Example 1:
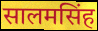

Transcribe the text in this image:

सालमसिंह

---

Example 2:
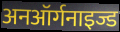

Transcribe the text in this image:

अनऑर्गनाइज्ड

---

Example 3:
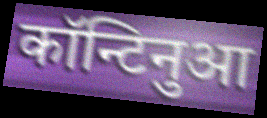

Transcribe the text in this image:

कॉन्टिनुआ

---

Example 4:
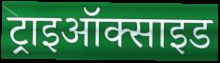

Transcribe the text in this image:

ट्राइऑक्साइड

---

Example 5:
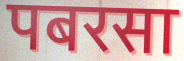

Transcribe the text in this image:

पबरसा